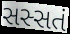
સસ્સતં